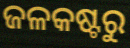
ଜଳକଷ୍ଟରୁ